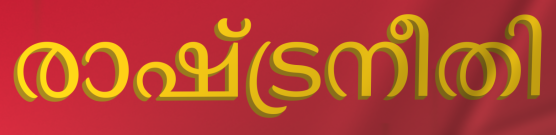
രാഷ്ട്രനീതി